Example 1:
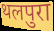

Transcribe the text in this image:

थलपुरा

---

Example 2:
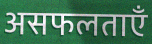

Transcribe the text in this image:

असफलताएँ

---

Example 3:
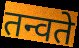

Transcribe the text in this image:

तन्वते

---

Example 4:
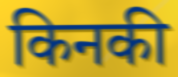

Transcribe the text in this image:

किनकी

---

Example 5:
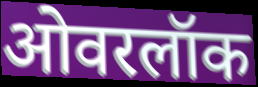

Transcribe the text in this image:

ओवरलॉक